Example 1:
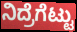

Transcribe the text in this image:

ನಿದ್ರೆಗೆಟ್ಟು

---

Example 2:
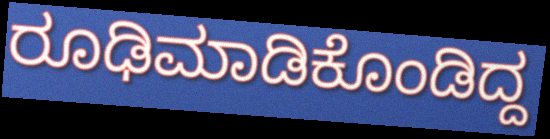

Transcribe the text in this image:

ರೂಢಿಮಾಡಿಕೊಂಡಿದ್ದ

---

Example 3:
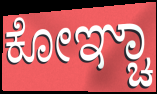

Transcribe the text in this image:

ಕೋಞ್ಚಾ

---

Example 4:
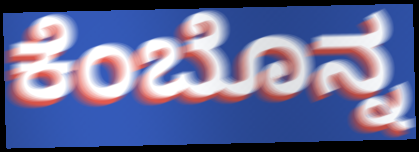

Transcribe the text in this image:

ಕೆಂಬೊನ್ನ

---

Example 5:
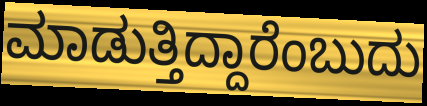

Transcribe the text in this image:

ಮಾಡುತ್ತಿದ್ದಾರೆಂಬುದು